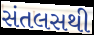
સંતલસથી